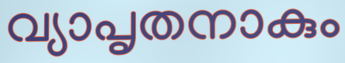
വ്യാപൃതനാകും